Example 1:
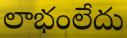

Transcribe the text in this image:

లాభంలేదు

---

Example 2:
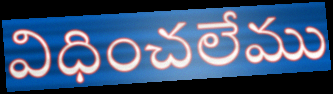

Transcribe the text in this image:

విధించలేము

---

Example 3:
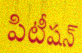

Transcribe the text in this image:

పిటీషన్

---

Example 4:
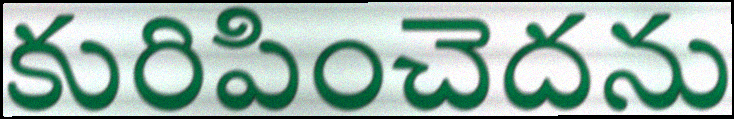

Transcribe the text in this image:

కురిపించెదను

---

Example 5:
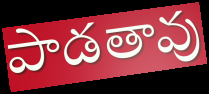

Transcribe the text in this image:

పాడతావు